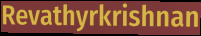
Revathyrkrishnan